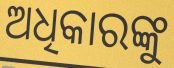
ଅଧିକାରଙ୍କୁ